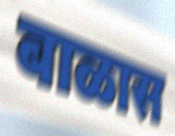
बाळास